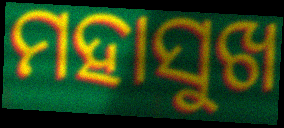
ମହାସୁଖ